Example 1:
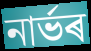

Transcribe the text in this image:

নাৰ্ভৰ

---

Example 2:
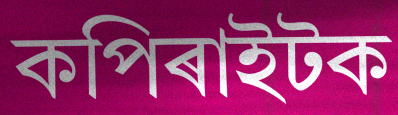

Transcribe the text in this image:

কপিৰাইটক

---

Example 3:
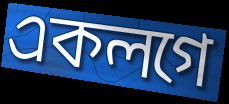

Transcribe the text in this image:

একলগে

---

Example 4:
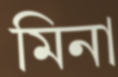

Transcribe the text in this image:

মিনা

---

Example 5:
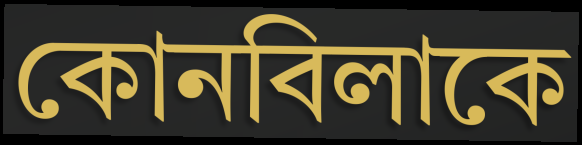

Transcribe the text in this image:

কোনবিলাকে